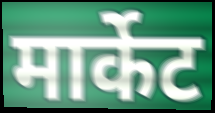
मार्केट